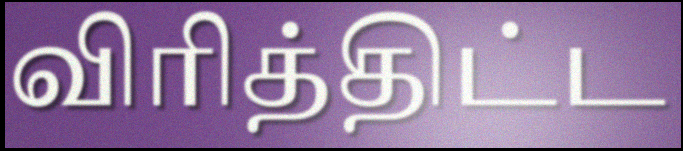
விரித்திட்ட